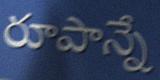
రూపాన్నే